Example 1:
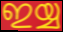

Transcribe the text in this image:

ഇയ്യ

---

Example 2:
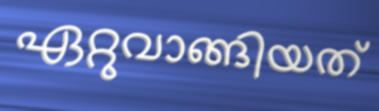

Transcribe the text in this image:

ഏറ്റുവാങ്ങിയത്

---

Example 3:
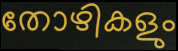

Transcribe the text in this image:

തോഴികളും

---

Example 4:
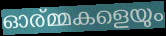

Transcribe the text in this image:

ഓര്മ്മകളെയും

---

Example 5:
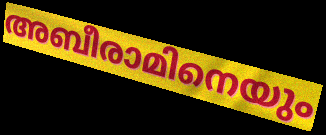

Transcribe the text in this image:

അബീരാമിനെയും